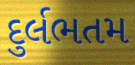
દુર્લભતમ